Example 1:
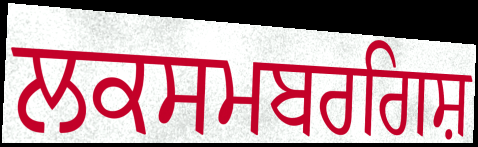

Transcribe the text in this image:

ਲਕਸਮਬਰਗਿਸ਼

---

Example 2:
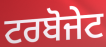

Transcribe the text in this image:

ਟਰਬੋਜੇਟ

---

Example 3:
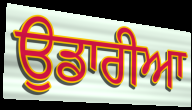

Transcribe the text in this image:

ਉਡਾਰੀਆ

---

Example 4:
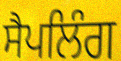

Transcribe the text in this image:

ਸੈਪਲਿੰਗ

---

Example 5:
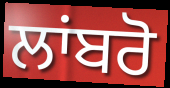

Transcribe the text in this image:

ਲਾਂਬਰੋ